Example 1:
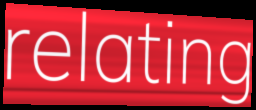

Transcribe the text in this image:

relating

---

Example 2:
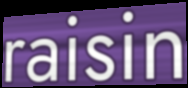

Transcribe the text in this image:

raisin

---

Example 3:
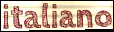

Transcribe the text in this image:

italiano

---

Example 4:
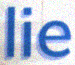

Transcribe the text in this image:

lie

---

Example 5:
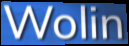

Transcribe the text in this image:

Wolin